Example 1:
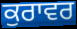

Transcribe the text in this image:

ਕੁਰਾਵਰ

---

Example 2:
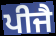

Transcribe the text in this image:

ਪੀਜੈ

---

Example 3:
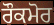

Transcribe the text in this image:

ਰੌਕਮੋਰ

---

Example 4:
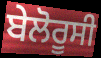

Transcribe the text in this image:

ਬੇਲੋਰੂਸੀ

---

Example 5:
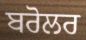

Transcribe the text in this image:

ਬਰੋਲਰ